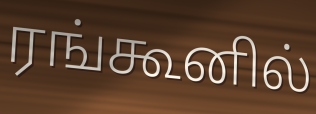
ரங்கூனில்